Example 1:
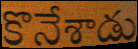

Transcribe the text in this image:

కొనేశాడు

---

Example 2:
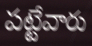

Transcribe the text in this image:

పట్టేవారు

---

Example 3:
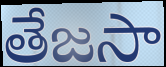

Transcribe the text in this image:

తేజసా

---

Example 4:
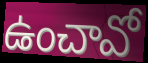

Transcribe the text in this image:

ఉంచావో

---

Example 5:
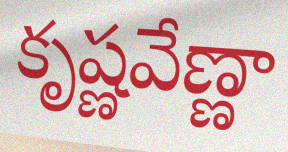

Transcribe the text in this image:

కృష్ణవేణ్ణా